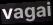
vagai